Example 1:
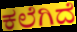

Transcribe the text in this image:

ಕಲೆಗಿದೆ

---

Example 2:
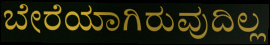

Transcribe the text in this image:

ಬೇರೆಯಾಗಿರುವುದಿಲ್ಲ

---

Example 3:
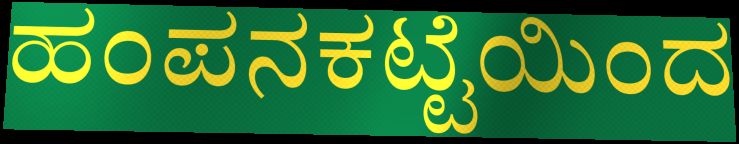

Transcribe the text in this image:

ಹಂಪನಕಟ್ಟೆಯಿಂದ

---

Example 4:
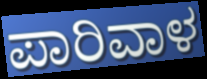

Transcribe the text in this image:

ಪಾರಿವಾಳ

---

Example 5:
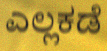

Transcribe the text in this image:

ಎಲ್ಲಕಡೆ